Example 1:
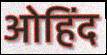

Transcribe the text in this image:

ओहिंद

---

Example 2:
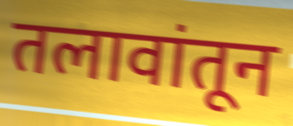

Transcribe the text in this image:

तलावांतून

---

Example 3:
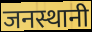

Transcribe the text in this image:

जनस्थानी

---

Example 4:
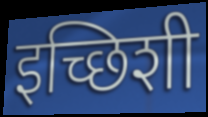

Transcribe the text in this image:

इच्छिशी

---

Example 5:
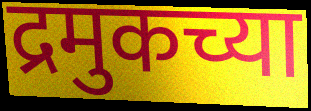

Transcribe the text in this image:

द्रमुकच्या